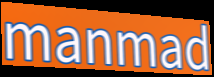
manmad